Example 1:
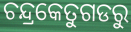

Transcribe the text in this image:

ଚନ୍ଦ୍ରକେତୁଗଡରୁ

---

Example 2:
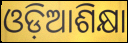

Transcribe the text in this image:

ଓଡ଼ିଆଶିକ୍ଷା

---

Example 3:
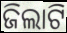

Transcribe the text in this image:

ଜିଲାଟି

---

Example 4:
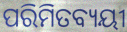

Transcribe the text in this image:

ପରିମିତବ୍ୟୟୀ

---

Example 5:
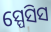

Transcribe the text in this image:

ସ୍ପେସିସ